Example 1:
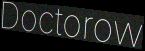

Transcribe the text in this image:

Doctorow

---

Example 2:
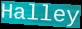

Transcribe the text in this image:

Halley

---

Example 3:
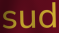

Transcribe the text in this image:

sud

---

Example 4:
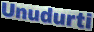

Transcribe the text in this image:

Unudurti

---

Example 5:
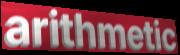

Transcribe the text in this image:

arithmetic